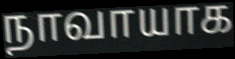
நாவாயாக